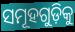
ସମୂହଗୁଡ଼ିକୁ